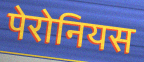
पेरोनियस